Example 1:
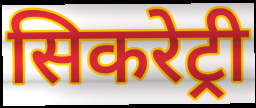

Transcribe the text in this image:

सिकरेट्री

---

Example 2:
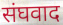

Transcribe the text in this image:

संघवाद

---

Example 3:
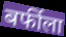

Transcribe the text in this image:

बर्फीला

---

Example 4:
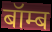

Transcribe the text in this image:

बॉम्ब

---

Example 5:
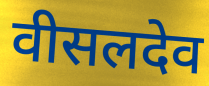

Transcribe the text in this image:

वीसलदेव